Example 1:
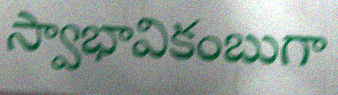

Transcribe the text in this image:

స్వాభావికంబుగా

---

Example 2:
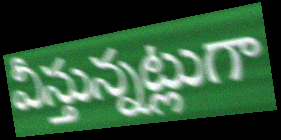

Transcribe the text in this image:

వీస్తున్నట్లుగా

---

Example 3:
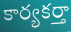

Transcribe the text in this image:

కార్యకర్తా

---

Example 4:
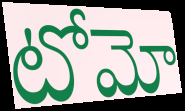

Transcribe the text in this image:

టోమో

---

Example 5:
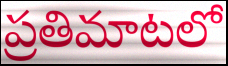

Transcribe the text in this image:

ప్రతిమాటలో